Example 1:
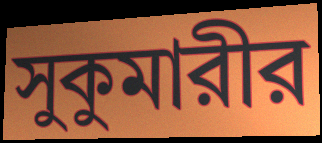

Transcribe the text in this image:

সুকুমারীর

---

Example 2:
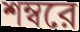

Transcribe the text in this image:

শম্বরে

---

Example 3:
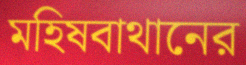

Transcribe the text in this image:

মহিষবাথানের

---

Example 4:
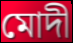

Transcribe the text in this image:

মোদী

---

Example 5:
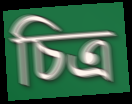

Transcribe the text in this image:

চিত্র